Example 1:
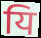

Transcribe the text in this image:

यि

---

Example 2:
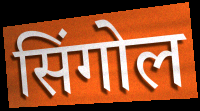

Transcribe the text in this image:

सिंगोल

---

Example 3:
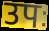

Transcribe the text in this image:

उपः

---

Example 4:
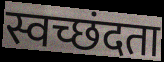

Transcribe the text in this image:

स्वच्छंदता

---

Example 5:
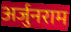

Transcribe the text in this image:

अर्जुनराम